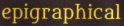
epigraphical